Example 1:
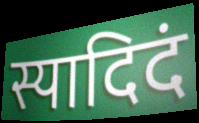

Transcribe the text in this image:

स्यादिदं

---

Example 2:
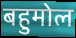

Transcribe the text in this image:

बहुमोल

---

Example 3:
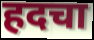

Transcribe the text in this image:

हदचा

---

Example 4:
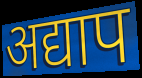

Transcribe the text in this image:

अद्याप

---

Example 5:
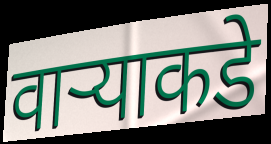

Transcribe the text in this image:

वाऱ्याकडे